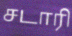
சடாரி